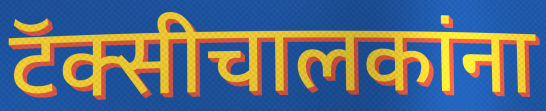
टॅक्सीचालकांना